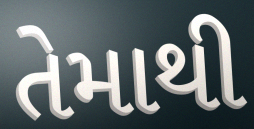
તેમાથી